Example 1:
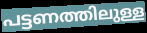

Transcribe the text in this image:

പട്ടണത്തിലുള്ള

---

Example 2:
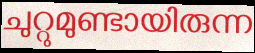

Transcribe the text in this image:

ചുറ്റുമുണ്ടായിരുന്ന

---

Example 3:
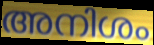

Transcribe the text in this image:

അനിശം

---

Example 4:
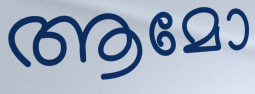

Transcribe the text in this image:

ആമോ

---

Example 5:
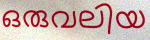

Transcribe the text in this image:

ഒരുവലിയ